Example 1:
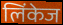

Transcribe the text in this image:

लिंकेज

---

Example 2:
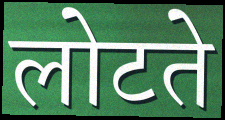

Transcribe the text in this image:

लोटते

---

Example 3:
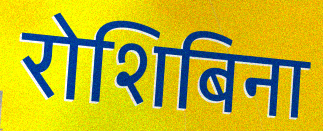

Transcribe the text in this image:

रोशिबिना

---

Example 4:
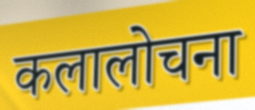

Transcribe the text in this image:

कलालोचना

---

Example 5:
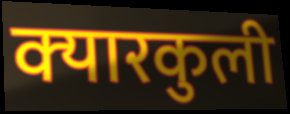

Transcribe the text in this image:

क्यारकुली